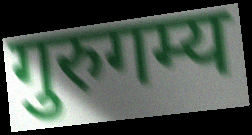
गुरुगम्य